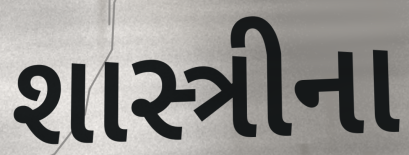
શાસ્ત્રીના